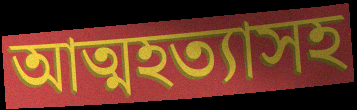
আত্মহত্যাসহ